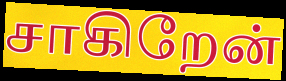
சாகிறேன்